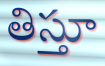
తిస్తూ